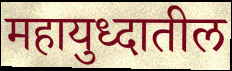
महायुध्दातील